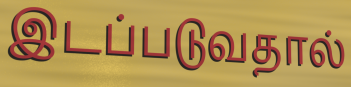
இடப்படுவதால்